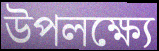
উপলক্ষ্যে